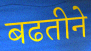
बढतीने